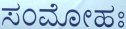
ಸಂಮೋಹಃ